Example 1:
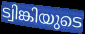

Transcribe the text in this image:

ട്വിങ്കിയുടെ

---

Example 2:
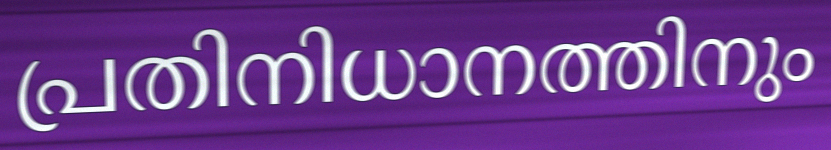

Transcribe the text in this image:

പ്രതിനിധാനത്തിനും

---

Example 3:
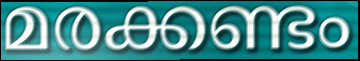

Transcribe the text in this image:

മരക്കണ്ടം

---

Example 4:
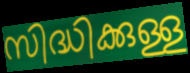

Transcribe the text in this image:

സിദ്ധിക്കുള്ള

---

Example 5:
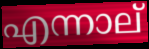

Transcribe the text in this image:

എന്നാല്